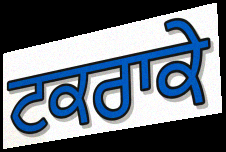
ਟਕਰਾਕੇ